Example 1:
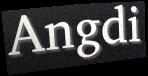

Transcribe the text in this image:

Angdi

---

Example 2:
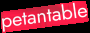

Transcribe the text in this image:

petantable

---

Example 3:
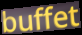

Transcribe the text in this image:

buffet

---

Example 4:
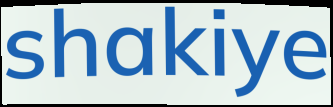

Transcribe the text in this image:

shakiye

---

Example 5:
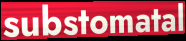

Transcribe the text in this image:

substomatal